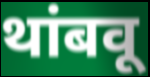
थांबवू